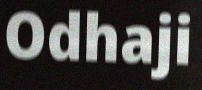
Odhaji